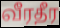
வீரதீர